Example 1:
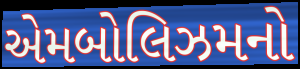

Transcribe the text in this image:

એમબોલિઝમનો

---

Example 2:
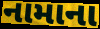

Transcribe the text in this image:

નામાના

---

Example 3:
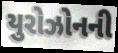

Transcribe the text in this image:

યુરોઝોનની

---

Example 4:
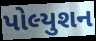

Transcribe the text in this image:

પોલ્યુશન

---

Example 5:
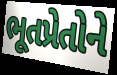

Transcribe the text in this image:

ભૂતપ્રેતોને